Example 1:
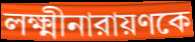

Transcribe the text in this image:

লক্ষ্মীনারায়ণকে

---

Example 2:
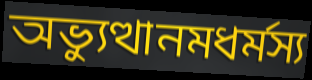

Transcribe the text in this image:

অভ্যুত্থানমধর্মস্য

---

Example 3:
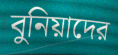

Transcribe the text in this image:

বুনিয়াদের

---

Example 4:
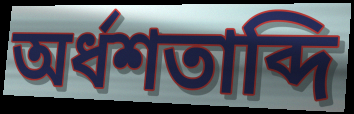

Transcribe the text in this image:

অর্ধশতাব্দি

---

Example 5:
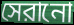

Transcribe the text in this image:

সেরানো